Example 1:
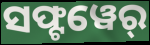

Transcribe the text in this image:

ସଫ୍ଟୱେର୍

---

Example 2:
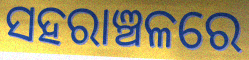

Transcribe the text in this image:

ସହରାଞ୍ଚଳରେ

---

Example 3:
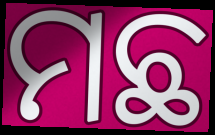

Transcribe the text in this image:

ମଛ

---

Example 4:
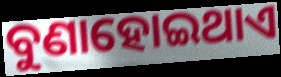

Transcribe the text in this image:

ବୁଣାହୋଇଥାଏ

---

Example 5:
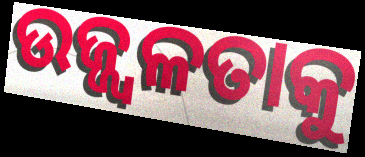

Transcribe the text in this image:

ଉଜ୍ଜ୍ୱଳତାକୁ